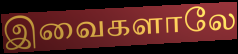
இவைகளாலே